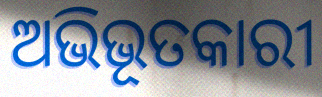
ଅଭିଭୂତକାରୀ